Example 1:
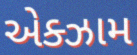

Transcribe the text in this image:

એક્ઝામ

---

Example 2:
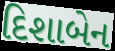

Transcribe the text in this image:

દિશાબેન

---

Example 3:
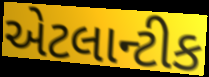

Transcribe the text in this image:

એટલાન્ટીક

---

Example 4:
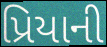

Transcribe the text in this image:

પ્રિયાની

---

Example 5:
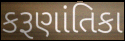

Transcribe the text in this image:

કરૂણાંતિકા